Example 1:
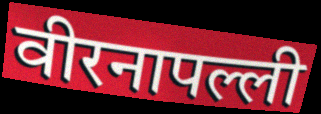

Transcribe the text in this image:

वीरनापल्ली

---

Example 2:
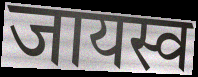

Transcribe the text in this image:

जायस्व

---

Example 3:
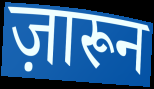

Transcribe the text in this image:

ज़ारून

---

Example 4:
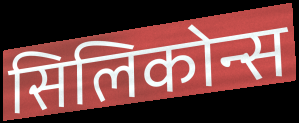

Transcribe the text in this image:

सिलिकोन्स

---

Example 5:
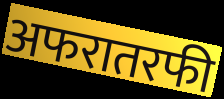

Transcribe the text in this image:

अफरातरफी